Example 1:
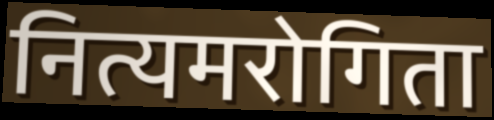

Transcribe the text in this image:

नित्यमरोगिता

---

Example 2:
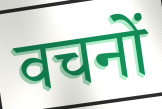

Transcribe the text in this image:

वचनों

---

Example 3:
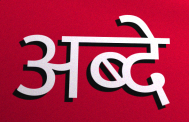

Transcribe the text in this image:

अब्दे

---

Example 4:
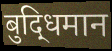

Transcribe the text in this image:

बुद्धिमान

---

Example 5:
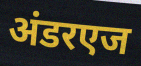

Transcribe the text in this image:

अंडरएज